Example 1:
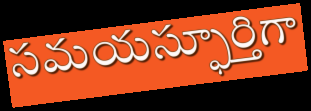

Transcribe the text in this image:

సమయస్ఫూర్తిగా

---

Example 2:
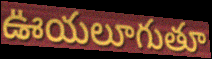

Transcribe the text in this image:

ఊయలూగుతూ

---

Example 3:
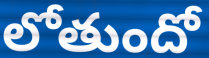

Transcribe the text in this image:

లోతుందో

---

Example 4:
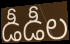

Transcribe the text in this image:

డీడీల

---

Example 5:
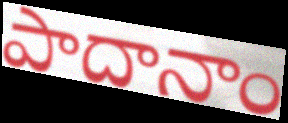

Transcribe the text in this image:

పాదానాం